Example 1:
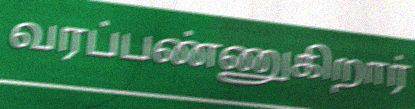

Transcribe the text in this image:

வரப்பண்ணுகிறார்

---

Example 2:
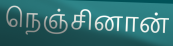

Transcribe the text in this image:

நெஞ்சினான்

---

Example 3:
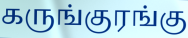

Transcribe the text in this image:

கருங்குரங்கு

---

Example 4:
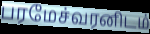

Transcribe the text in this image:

பரமேச்வரனிடம்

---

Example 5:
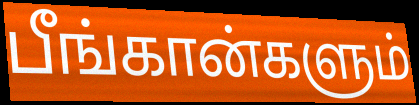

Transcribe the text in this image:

பீங்கான்களும்